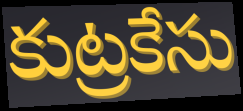
కుట్రకేసు